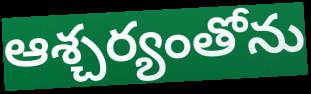
ఆశ్చర్యంతోను